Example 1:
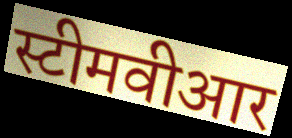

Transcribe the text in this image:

स्टीमवीआर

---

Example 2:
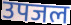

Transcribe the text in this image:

उपजल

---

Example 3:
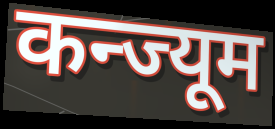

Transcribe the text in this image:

कन्ज्यूम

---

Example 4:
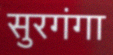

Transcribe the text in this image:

सुरगंगा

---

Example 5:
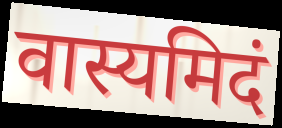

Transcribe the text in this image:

वास्यमिदं